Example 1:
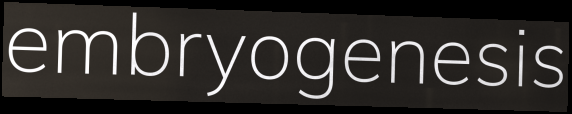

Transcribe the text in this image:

embryogenesis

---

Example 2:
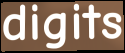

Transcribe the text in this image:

digits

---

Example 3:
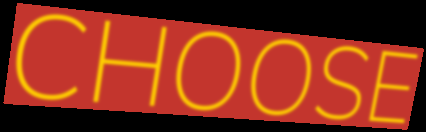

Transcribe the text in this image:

CHOOSE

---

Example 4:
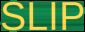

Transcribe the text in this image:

SLIP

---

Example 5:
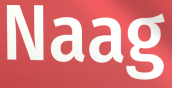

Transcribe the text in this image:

Naag